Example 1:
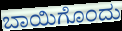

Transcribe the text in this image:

ಬಾಯಿಗೊಂದು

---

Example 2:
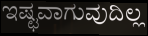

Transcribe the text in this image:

ಇಷ್ಟವಾಗುವುದಿಲ್ಲ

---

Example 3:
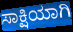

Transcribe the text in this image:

ಸಾಕ್ಷಿಯಾಗಿ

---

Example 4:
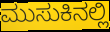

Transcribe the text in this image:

ಮುಸುಕಿನಲ್ಲಿ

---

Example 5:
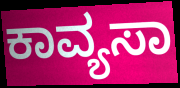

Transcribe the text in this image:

ಕಾವ್ಯಸಾ